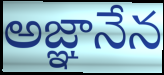
అజ్ఞానేన